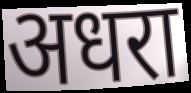
अधरा